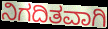
ನಿಗದಿತವಾಗಿ